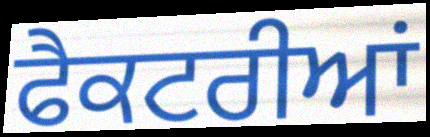
ਫੈਕਟਰੀਆਂ